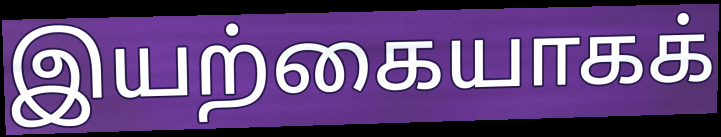
இயற்கையாகக்